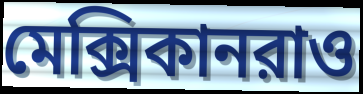
মেক্সিকানরাও